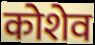
कोशेव